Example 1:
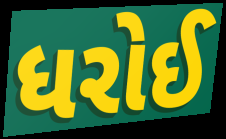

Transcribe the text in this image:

ધરોઈ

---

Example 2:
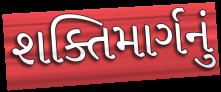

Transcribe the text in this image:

શક્તિમાર્ગનું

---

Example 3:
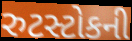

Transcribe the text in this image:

રુટસ્ટોકની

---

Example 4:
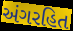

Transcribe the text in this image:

અંગરહિત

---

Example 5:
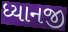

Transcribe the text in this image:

ધ્યાનજી